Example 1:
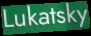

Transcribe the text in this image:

Lukatsky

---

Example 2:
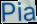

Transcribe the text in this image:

Pia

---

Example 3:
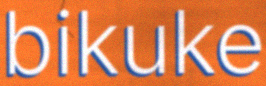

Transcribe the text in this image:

bikuke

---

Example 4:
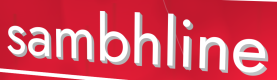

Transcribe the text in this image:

sambhline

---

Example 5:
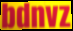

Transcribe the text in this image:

bdnvz